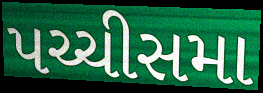
પચ્ચીસમા